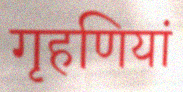
गृहणियां